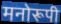
मनोरूपी